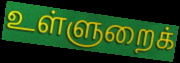
உள்ளுறைக்